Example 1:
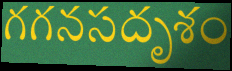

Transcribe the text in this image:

గగనసదృశం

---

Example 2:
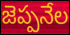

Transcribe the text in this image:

జెప్పనేల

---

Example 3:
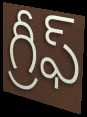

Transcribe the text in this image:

గ్రీఫ్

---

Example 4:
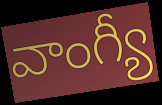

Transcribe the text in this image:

వాంగ్యీ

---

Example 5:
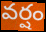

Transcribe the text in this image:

వర్షం